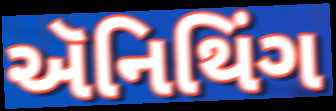
ઍનિથિંગ